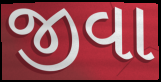
જીવા